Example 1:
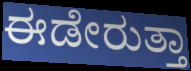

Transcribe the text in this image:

ಈಡೇರುತ್ತಾ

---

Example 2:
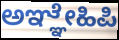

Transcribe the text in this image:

ಅಞ್ಞೇಹಿಪಿ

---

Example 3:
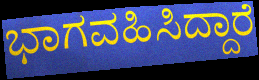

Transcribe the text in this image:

ಭಾಗವಹಿಸಿದ್ದಾರೆ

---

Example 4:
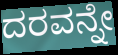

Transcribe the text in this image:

ದರವನ್ನೇ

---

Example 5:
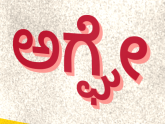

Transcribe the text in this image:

ಅಗ್ಘೇ